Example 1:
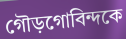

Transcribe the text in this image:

গৌড়গোবিন্দকে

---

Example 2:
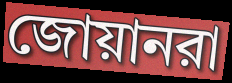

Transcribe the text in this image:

জোয়ানরা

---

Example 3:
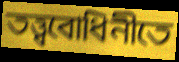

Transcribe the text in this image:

তত্ত্ববোধিনীতে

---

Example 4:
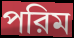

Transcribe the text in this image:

পরিম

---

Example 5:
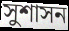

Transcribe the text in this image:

সুশাসন